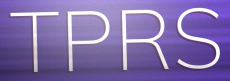
TPRS